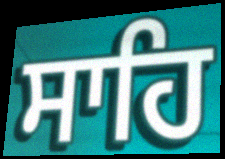
ਸਾਹਿ